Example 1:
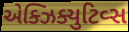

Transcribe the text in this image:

એક્ઝિક્યુટિવ્સ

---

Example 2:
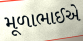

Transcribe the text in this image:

મૂળાભાઈએ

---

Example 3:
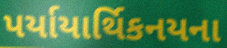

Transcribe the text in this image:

પર્યાયાર્થિકનયના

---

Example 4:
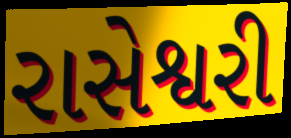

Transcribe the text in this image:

રાસેશ્વરી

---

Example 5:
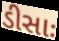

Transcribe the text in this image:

ડીસાઃ